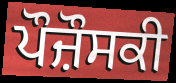
ਪੌਜ਼ੌਸਕੀ